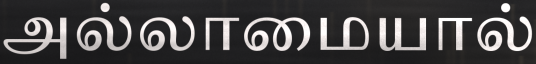
அல்லாமையால்